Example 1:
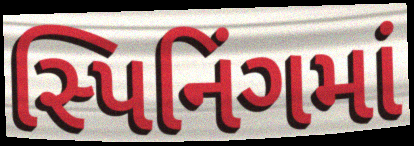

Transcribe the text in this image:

સ્પિનિંગમાં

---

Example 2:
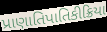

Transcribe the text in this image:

પ્રાણાતિપાતિકીક્રિયા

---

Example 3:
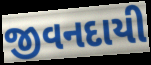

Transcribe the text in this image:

જીવનદાયી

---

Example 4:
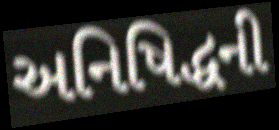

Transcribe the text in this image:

અનિષિદ્ધની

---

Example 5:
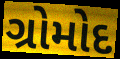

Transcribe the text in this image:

ગ્રોમોદ